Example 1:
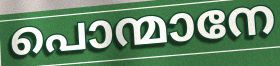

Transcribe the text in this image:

പൊന്മാനേ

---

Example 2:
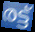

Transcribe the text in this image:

രട്ട്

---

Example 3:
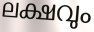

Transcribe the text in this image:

ലക്ഷവും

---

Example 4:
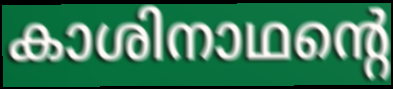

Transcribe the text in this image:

കാശിനാഥന്റെ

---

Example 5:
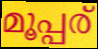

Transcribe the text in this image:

മൂപ്പര്